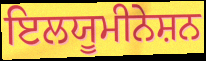
ਇਲਯੂਮੀਨੇਸ਼ਨ